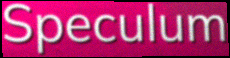
Speculum